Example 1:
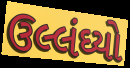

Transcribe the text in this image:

ઉલ્લંઘ્યો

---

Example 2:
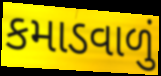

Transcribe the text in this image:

કમાડવાળું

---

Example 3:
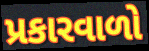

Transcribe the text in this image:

પ્રકારવાળો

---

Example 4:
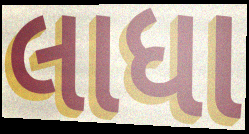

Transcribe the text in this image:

લાધા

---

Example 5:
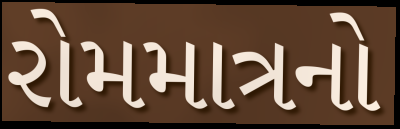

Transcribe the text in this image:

રોમમાત્રનો